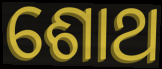
ଶୋଥ